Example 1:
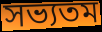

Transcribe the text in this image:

সভ্যতম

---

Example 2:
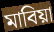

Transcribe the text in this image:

মাবিয়া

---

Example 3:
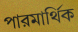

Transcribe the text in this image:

পারমার্থিক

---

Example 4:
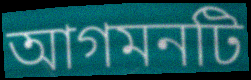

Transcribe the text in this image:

আগমনটি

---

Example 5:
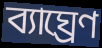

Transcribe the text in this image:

ব্যাঘ্রেণ